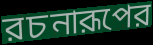
রচনারূপের